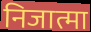
निजात्मा